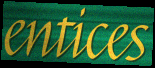
entices